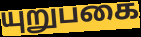
யுறுபகை